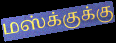
மஸ்க்குக்கு